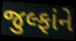
જુલ્ફાંને